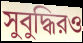
সুবুদ্ধিরও